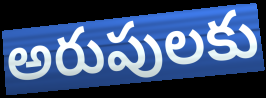
అరుపులకు